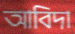
আবিদা